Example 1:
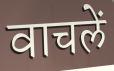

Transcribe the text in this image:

वाचलें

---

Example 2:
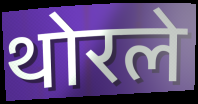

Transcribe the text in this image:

थोरले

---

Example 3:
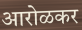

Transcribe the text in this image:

आरोळकर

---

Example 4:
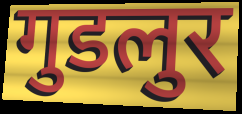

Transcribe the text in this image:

गुडलुर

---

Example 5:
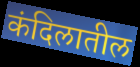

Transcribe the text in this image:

कंदिलातील